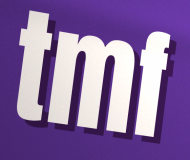
tmf